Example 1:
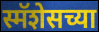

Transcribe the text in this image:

स्मॅशेसच्या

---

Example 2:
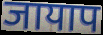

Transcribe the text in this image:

जायाप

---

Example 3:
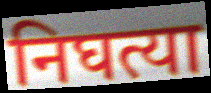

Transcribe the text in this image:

निघत्या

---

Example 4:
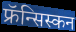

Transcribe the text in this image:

फ्रॅन्सिस्कन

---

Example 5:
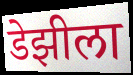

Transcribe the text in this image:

डेझीला